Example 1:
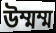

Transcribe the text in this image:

উম্মম্ম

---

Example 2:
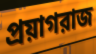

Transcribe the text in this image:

প্রয়াগরাজ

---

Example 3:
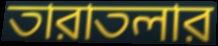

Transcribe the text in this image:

তারাতলার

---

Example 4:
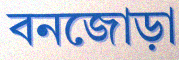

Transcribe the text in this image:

বনজোড়া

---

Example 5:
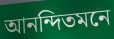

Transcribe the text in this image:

আনন্দিতমনে